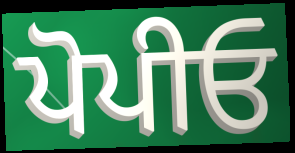
ਪੋਪੀਓ